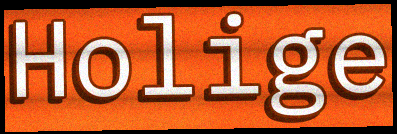
Holige